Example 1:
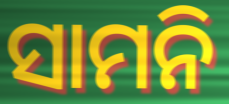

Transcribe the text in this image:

ସାମନି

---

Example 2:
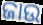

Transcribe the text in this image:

ଜାଉ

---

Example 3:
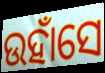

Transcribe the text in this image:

ଉହାଁସେ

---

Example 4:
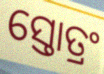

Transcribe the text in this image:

ସ୍ତୋତ୍ରଂ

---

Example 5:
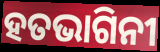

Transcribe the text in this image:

ହତଭାଗିନୀ